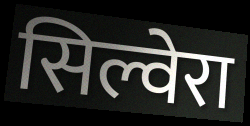
सिल्वेरा